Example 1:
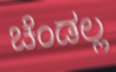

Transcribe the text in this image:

ಚೆಂಡಲ್ಲ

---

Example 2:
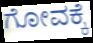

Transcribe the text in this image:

ಗೋವಕ್ಕೆ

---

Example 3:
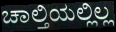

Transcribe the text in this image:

ಚಾಲ್ತಿಯಲ್ಲಿಲ್ಲ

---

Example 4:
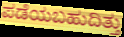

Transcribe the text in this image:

ಪಡೆಯಬಹುದಿತ್ತು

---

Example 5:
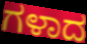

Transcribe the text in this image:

ಗಳಾದ